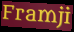
Framji